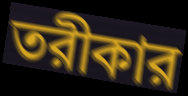
তরীকার